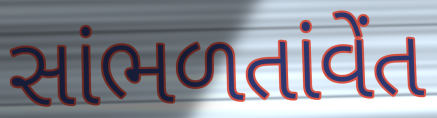
સાંભળતાંવેંત